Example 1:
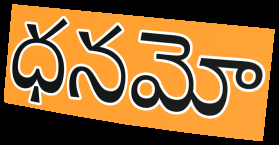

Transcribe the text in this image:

ధనమో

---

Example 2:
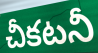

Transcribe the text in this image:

చీకటనీ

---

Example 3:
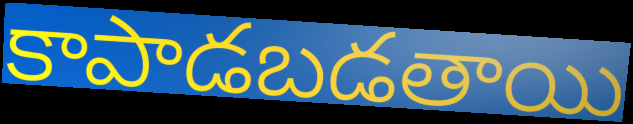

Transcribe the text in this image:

కాపాడబడతాయి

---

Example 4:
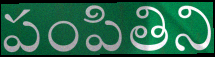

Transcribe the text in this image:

పంపితిని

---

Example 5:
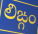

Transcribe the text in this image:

లిఙ్గం